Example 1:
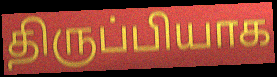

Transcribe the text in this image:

திருப்பியாக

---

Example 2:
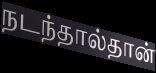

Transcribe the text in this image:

நடந்தால்தான்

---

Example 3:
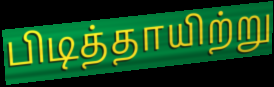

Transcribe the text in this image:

பிடித்தாயிற்று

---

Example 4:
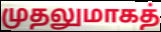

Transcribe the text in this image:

முதலுமாகத்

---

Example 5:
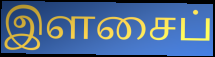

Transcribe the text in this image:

இளசைப்